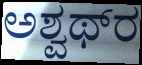
ಅಶ್ವಥ್‌ರ